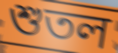
শুতল